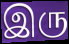
இரு